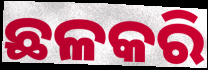
ଛଳକରି